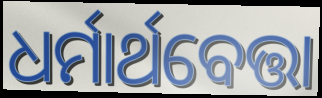
ଧର୍ମାର୍ଥବେତ୍ତା